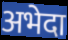
अभेदा